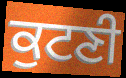
ਕੁਟਣੀ